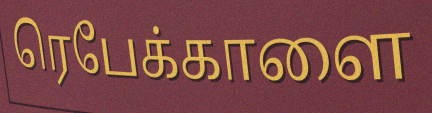
ரெபேக்காளை